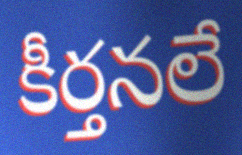
కీర్తనలే